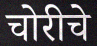
चोरीचे